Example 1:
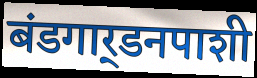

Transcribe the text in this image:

बंडगार्डनपाशी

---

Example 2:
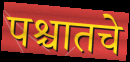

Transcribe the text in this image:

पश्चातचे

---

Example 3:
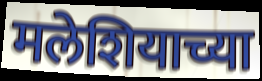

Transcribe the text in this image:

मलेशियाच्या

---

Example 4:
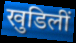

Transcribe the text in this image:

खुडिलीं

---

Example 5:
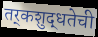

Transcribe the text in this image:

तर्कशुद्धतेची